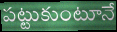
పట్టుకుంటూనే